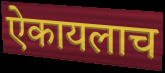
ऐकायलाच